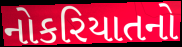
નોકરિયાતનો